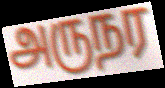
அருநர